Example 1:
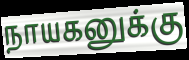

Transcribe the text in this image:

நாயகனுக்கு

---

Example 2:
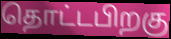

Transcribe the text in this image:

தொட்டபிறகு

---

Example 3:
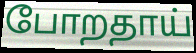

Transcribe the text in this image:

போறதாய்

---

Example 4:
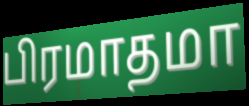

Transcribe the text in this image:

பிரமாதமா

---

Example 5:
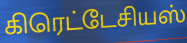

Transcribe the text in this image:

கிரெட்டேசியஸ்